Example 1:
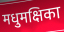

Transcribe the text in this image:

मधुमक्षिका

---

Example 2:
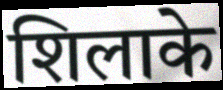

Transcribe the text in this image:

शिलाके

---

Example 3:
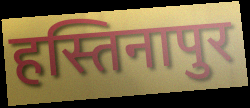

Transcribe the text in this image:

हस्तिनापुर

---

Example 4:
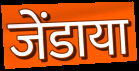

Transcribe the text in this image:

जेंडाया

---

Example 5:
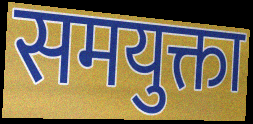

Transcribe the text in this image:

समयुक्ता